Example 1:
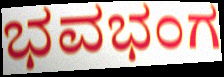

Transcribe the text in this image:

ಭವಭಂಗ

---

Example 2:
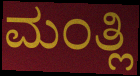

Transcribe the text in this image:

ಮಂತ್ಲಿ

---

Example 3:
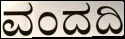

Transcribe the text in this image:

ವಂದದಿ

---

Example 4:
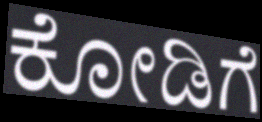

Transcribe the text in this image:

ಕೋಡಿಗೆ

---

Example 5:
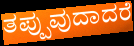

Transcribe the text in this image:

ತಪ್ಪುವುದಾದರೆ